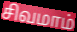
சிவமாம்